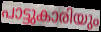
പാട്ടുകാരിയും